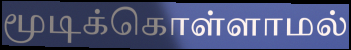
மூடிக்கொள்ளாமல்